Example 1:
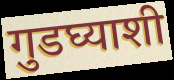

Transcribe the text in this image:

गुडघ्याशी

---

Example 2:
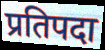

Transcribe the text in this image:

प्रतिपदा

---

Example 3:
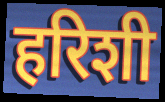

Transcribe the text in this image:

हरिशी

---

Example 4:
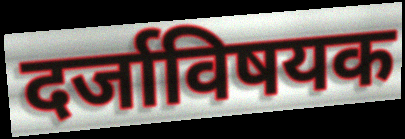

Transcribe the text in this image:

दर्जाविषयक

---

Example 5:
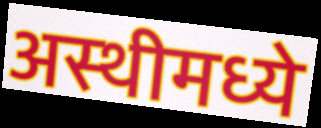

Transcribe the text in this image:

अस्थीमध्ये